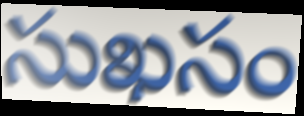
సుఖసం